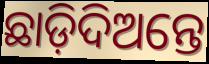
ଛାଡ଼ିଦିଅନ୍ତେ